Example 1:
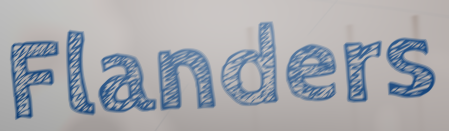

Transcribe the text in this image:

Flanders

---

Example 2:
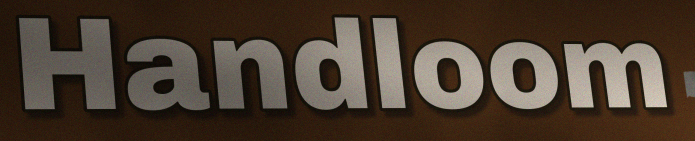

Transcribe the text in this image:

Handloom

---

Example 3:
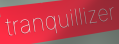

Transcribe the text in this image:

tranquillizer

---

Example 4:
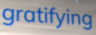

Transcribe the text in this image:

gratifying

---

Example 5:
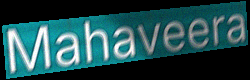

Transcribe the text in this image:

Mahaveera